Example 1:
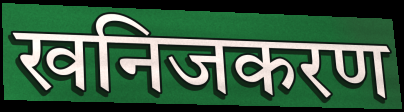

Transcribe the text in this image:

खनिजकरण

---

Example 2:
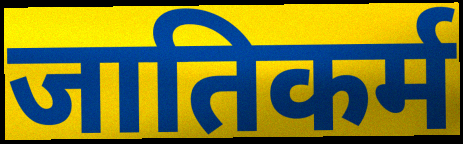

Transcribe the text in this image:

जातिकर्म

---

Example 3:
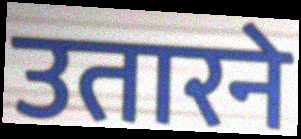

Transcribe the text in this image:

उतारने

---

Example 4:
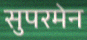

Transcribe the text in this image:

सुपरमेन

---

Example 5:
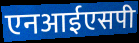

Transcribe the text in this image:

एनआईएसपी